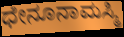
ಧೇನೂನಾಮಸ್ಮಿ